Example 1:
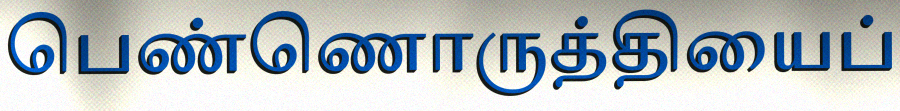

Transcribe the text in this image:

பெண்ணொருத்தியைப்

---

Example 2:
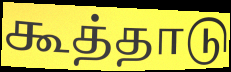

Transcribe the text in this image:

கூத்தாடு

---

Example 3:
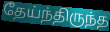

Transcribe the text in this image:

தேய்ந்திருந்த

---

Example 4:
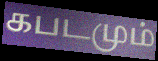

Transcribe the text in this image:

கபடமும்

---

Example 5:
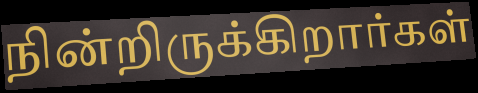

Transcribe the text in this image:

நின்றிருக்கிறார்கள்